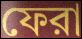
ফেরা